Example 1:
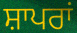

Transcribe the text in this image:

ਸ਼ਾਪਰਾਂ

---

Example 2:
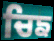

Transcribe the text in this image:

ਚਿਙ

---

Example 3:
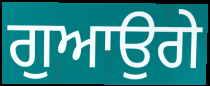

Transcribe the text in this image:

ਗੁਆਉਗੇ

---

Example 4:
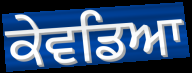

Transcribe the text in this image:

ਕੇਵਡਿਆ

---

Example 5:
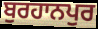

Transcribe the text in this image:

ਬੁਰਹਾਨਪੁਰ